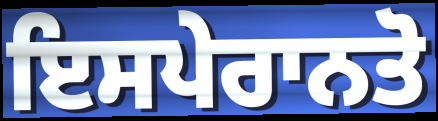
ਇਸਪੇਰਾਨਤੋ